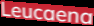
Leucaena